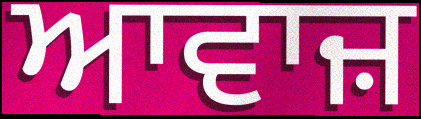
ਆਵਾਜ਼